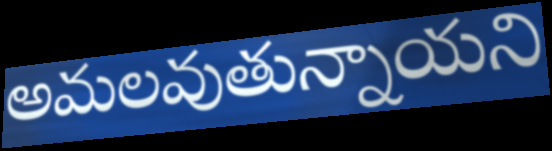
అమలవుతున్నాయని